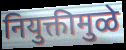
नियुक्तीमुळे